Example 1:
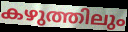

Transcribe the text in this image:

കഴുത്തിലും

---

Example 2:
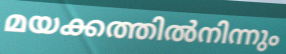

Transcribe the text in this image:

മയക്കത്തിൽനിന്നും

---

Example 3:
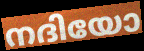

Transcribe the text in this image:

നദിയോ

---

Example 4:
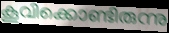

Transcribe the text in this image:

കൂവിക്കൊണ്ടിരുന്നു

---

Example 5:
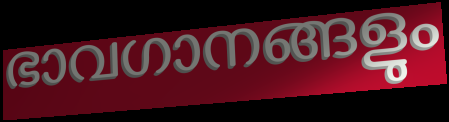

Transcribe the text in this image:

ഭാവഗാനങ്ങളും